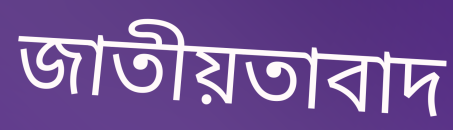
জাতীয়তাবাদ